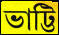
ভাট্টি